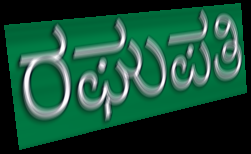
ರಘುಪತಿ